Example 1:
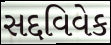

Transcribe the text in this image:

સદ્દવિવેક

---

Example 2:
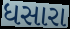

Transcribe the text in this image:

ધસારા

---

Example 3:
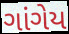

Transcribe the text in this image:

ગાંગેય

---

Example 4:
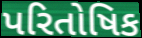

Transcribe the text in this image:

પરિતોષિક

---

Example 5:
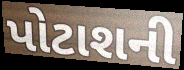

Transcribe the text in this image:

પોટાશની